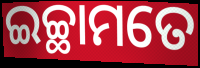
ଇଚ୍ଛାମତେ